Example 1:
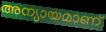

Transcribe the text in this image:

അന്യായമാണ്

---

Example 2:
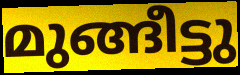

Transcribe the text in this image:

മുങ്ങീട്ടു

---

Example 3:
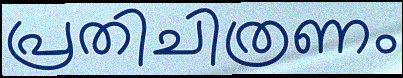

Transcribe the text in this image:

പ്രതിചിത്രണം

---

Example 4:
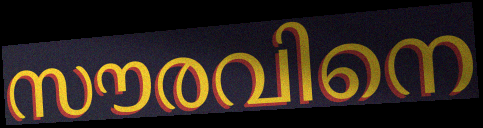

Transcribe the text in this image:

സൗരവിനെ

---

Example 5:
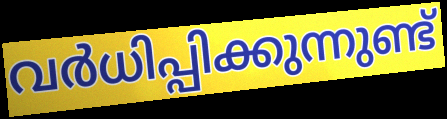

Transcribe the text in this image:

വർധിപ്പിക്കുന്നുണ്ട്